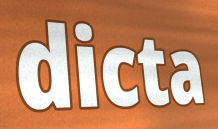
dicta